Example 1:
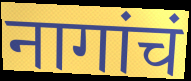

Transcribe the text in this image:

नागांचं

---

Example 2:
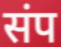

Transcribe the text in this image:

संप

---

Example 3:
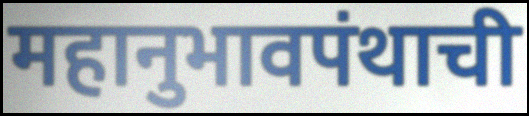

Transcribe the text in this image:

महानुभावपंथाची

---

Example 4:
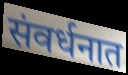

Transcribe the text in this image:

संवर्धनात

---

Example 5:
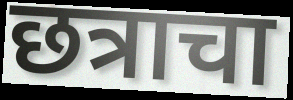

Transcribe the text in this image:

छत्राचा